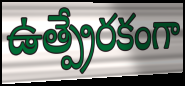
ఉత్ప్రేరకంగా